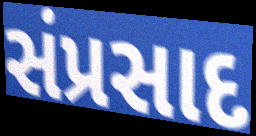
સંપ્રસાદ